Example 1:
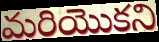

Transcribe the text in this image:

మరియొకని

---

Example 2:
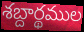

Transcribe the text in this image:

శబ్దార్థముల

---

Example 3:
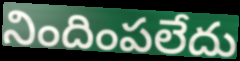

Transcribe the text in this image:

నిందింపలేదు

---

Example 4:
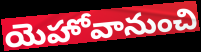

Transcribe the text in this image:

యెహోవానుంచి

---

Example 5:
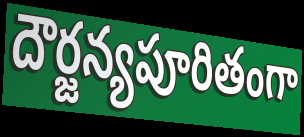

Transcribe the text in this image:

దౌర్జన్యపూరితంగా